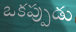
ఒకప్పుడు